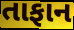
તાફાન